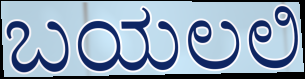
ಬಯಲಲಿ